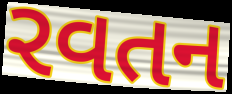
રવતન